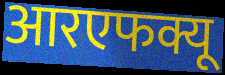
आरएफक्यू